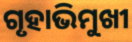
ଗୃହାଭିମୁଖୀ